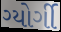
ગ્યોર્ગી